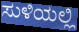
ಸುಳಿಯಲ್ಲಿ